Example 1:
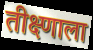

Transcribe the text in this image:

तीक्ष्णाला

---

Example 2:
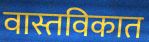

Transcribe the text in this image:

वास्तविकात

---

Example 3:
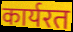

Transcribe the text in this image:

कार्यरत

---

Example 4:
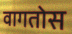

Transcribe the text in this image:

वागतोस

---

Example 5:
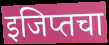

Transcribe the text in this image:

इजिप्तचा